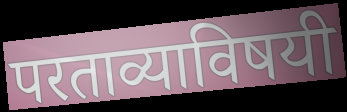
परताव्याविषयी